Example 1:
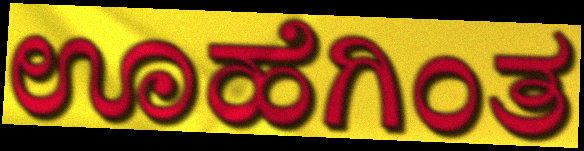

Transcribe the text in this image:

ಊಹೆಗಿಂತ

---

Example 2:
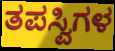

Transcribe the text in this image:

ತಪಸ್ವಿಗಳ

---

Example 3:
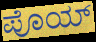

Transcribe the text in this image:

ಪೊಯ್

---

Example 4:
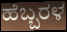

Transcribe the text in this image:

ಹೆಬ್ಬರಳ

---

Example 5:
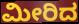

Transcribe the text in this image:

ಮೀರಿದ